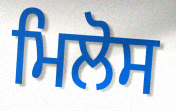
ਮਿਲੋਸ